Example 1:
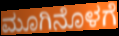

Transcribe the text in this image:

ಮೂಗಿನೊಳಗೆ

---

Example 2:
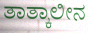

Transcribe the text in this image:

ತಾತ್ಕಾಲೀನ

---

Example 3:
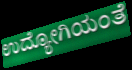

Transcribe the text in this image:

ಉದ್ಯೋಗಿಯಂತೆ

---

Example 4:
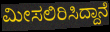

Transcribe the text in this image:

ಮೀಸಲಿರಿಸಿದ್ದಾನೆ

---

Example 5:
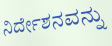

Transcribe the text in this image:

ನಿರ್ದೇಶನವನ್ನು